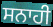
ਸਨਾਹੀ